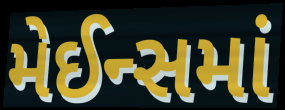
મેઈન્સમાં